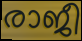
രാജീ